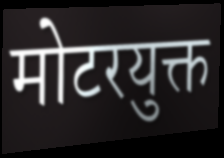
मोटरयुक्त